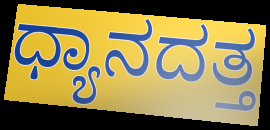
ಧ್ಯಾನದತ್ತ